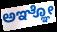
ಅಞ್ಞೋ